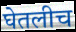
घेतलीच